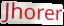
Jhorer